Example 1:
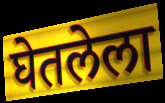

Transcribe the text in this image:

घेतलेला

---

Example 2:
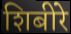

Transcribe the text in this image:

शिबीरे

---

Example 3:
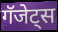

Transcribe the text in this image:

गॅजेट्स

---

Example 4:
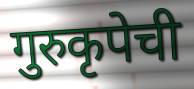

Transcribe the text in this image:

गुरुकृपेची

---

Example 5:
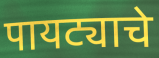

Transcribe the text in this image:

पायट्याचे